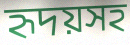
হৃদয়সহ